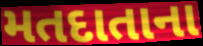
મતદાતાના